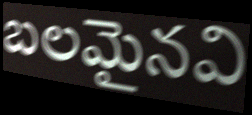
బలమైనవి